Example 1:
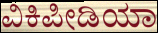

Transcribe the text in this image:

ವಿಕಿಪೀಡಿಯಾ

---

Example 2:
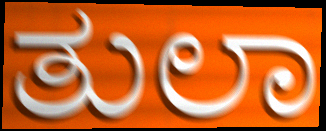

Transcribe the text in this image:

ತುಲಾ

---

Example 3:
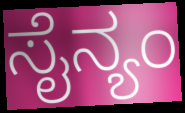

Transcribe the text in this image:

ಸೈನ್ಯಂ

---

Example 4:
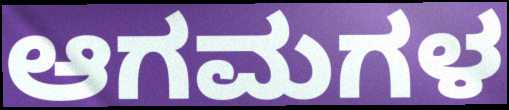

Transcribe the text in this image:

ಆಗಮಗಳ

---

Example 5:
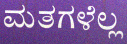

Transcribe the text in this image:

ಮತಗಳೆಲ್ಲ